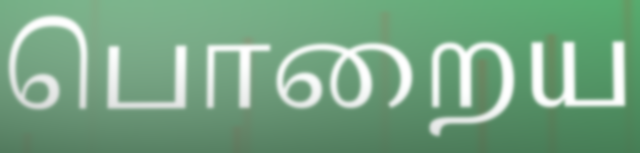
பொறைய